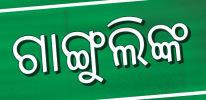
ଗାଙ୍ଗୁଲିଙ୍କ